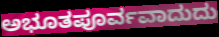
ಅಭೂತಪೂರ್ವವಾದುದು